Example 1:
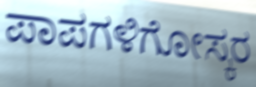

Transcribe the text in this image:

ಪಾಪಗಳಿಗೋಸ್ಕರ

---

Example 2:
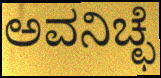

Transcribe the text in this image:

ಅವನಿಚ್ಛೆ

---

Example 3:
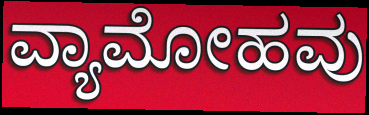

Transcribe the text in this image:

ವ್ಯಾಮೋಹವು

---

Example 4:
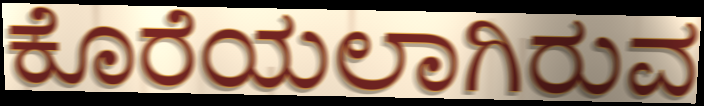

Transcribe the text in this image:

ಕೊರೆಯಲಾಗಿರುವ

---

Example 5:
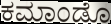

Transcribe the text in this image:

ಕಮಾಂಡೊ